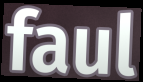
faul